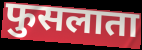
फुसलाता